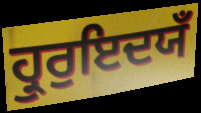
ਹ੍ਰੁਰੁਇਦਯਁ